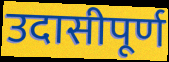
उदासीपूर्ण